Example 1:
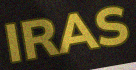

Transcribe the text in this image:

IRAS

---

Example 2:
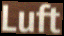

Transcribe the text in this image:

Luft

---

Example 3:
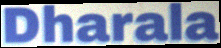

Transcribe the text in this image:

Dharala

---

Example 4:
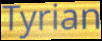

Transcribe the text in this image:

Tyrian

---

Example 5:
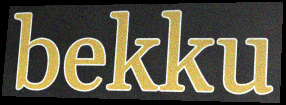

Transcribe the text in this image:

bekku